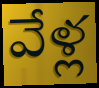
వేళ్ల